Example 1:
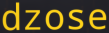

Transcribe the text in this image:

dzose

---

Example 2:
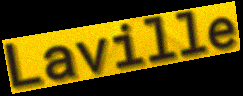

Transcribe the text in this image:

Laville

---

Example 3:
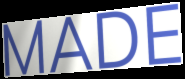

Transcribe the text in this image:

MADE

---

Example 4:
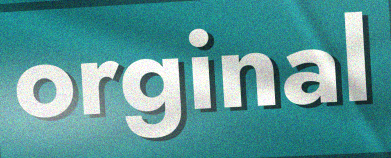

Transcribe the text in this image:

orginal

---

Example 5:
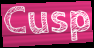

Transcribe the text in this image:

Cusp